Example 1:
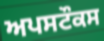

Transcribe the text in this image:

ਅਪਸਟੌਕਸ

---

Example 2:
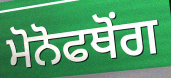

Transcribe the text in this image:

ਮੋਨੋਫਥੋਂਗ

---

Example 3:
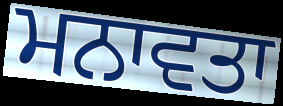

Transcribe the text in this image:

ਮਨਾਵਤਾ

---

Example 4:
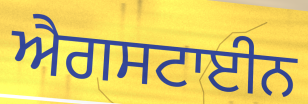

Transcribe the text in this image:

ਐਗਸਟਾਈਨ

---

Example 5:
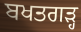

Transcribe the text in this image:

ਬਖਤਗੜ੍ਹ